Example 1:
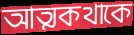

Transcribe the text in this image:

আত্মকথাকে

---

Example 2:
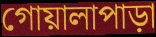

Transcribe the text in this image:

গোয়ালাপাড়া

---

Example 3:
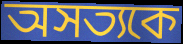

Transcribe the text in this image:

অসত্যকে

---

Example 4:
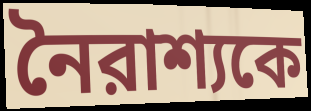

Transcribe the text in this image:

নৈরাশ্যকে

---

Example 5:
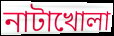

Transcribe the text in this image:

নাটাখোলা